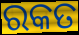
ରକତ